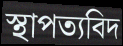
স্থাপত্যবিদ